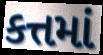
કત્તમાં